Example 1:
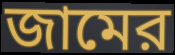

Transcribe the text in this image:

জামের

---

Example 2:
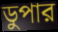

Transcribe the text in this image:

ডুপার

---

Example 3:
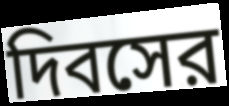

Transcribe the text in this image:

দিবসের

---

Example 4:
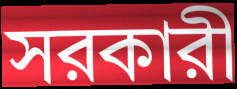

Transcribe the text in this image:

সরকারী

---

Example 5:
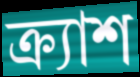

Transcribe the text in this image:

ক্র্যাশ